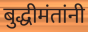
बुद्धीमंतांनी